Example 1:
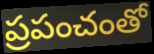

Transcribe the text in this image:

ప్రపంచంతో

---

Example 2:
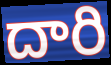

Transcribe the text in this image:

దారి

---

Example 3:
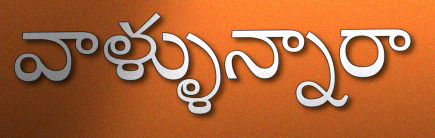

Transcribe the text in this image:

వాళ్ళున్నారా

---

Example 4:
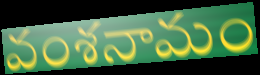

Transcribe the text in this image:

వంశనామం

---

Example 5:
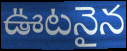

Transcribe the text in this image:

ఊటనైన